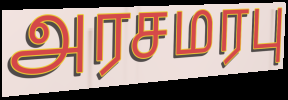
அரசமரபு